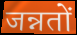
जन्नतों